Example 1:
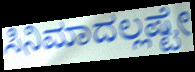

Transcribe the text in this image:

ಸಿನಿಮಾದಲ್ಲಷ್ಟೇ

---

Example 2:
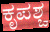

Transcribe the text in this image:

ಕೃಪಶ್ಚ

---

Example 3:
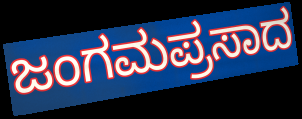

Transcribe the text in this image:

ಜಂಗಮಪ್ರಸಾದ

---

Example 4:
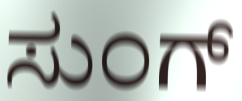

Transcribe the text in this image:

ಸುಂಗ್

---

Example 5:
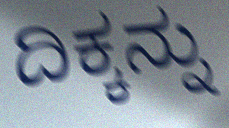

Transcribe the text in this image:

ದಿಕ್ಕನ್ನು